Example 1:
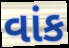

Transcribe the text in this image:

વાંક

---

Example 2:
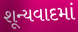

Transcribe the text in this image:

શૂન્યવાદમાં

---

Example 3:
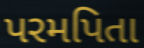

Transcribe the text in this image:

પરમપિતા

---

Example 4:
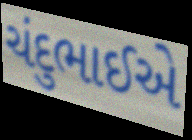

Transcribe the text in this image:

ચંદુભાઈએ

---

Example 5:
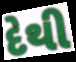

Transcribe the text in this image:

દેથી